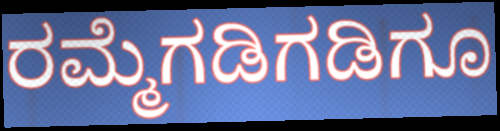
ರಮ್ಮೆಗಡಿಗಡಿಗೂ